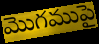
మొగముపై